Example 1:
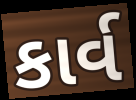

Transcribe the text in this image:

કાર્વ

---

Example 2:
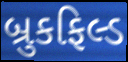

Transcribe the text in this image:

બ્રુકફિલ્ડ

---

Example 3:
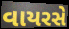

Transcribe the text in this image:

વાયરસે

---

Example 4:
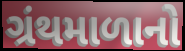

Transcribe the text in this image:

ગ્રંથમાળાનો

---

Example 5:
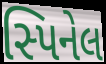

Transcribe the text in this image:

સ્પિનેલ